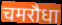
चमरौधा